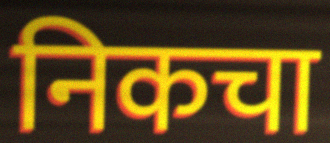
निकचा